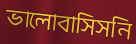
ভালোবাসিসনি